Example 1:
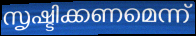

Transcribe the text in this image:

സൃഷ്ടിക്കണമെന്ന്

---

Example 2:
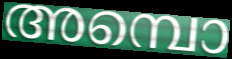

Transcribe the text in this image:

അമ്പൊ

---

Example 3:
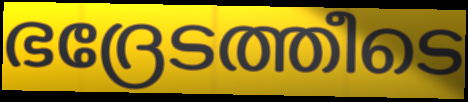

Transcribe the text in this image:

ഭദ്രേടത്തീടെ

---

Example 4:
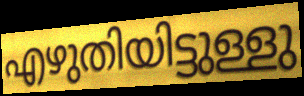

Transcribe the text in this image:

എഴുതിയിട്ടുള്ളു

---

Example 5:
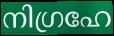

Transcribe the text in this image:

നിഗ്രഹേ